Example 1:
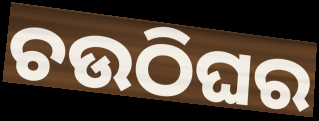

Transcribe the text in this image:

ଚଉଠିଘର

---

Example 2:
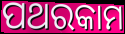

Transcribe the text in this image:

ପଥରକାମ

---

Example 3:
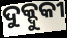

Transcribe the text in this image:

ଦୁକ୍ଦୁକୀ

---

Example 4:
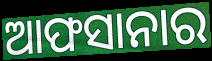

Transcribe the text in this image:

ଆଫସାନାର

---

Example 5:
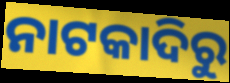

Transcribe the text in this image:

ନାଟକାଦିରୁ